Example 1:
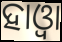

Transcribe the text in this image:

ହାଓ୍ୱା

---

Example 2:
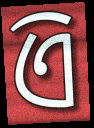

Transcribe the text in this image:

ଏି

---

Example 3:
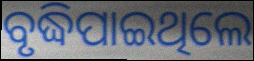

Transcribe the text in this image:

ବୃଦ୍ଧିପାଇଥିଲେ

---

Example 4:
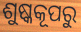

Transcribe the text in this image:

ଶୁଷ୍କକୂପରୁ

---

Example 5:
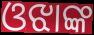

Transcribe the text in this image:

ଓଝାଙ୍କ